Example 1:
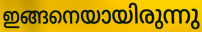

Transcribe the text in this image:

ഇങ്ങനെയായിരുന്നു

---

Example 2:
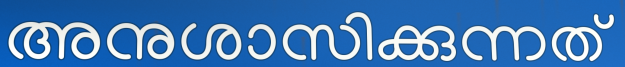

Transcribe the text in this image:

അനുശാസിക്കുന്നത്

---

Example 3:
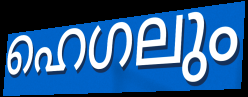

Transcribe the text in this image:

ഹെഗലും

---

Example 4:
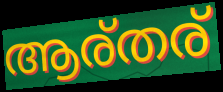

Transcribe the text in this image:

ആര്തര്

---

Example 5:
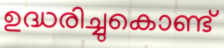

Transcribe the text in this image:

ഉദ്ധരിച്ചുകൊണ്ട്